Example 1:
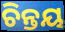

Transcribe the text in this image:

ଚିନ୍ତୟ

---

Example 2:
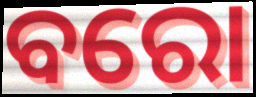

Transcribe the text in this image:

ବରୋ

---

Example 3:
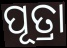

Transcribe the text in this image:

ପୂତ୍ରା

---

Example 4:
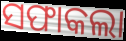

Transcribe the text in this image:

ସଫାକଲା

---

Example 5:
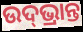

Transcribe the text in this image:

ଉଦ୍‌ଭ୍ରାନ୍ତ